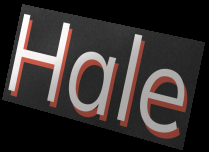
Hale